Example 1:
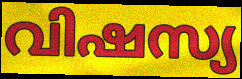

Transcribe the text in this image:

വിഷസ്യ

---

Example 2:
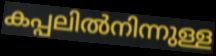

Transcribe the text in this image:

കപ്പലിൽനിന്നുള്ള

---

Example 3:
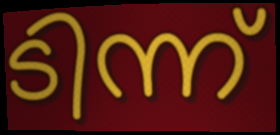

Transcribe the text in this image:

ടിന്ന്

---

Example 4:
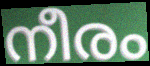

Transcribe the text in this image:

നീരം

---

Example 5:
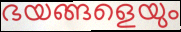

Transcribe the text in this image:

ഭയങ്ങളെയും